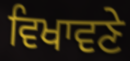
ਵਿਖਾਵਣੇ